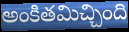
అంకితమిచ్చింది